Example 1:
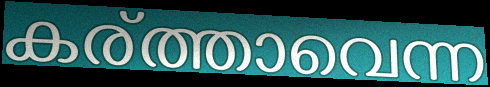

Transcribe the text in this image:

കര്ത്താവെന്ന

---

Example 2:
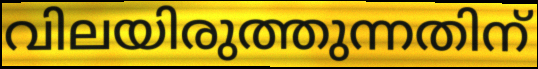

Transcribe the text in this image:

വിലയിരുത്തുന്നതിന്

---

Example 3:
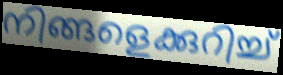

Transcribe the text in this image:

നിങ്ങളെക്കുറിച്ച്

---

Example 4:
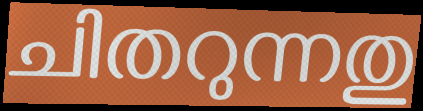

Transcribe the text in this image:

ചിതറുന്നതു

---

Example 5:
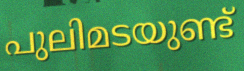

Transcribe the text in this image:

പുലിമടയുണ്ട്